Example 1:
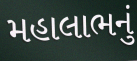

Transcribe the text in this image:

મહાલાભનું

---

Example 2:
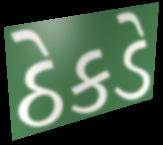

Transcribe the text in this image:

ઠેકડે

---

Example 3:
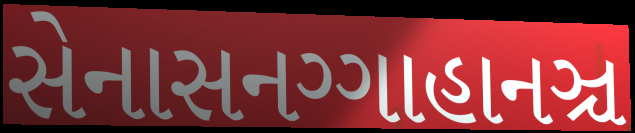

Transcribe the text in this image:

સેનાસનગ્ગાહાનઞ્ચ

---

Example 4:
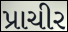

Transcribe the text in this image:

પ્રાચીર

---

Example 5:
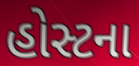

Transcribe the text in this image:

હોસ્ટના